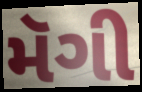
મૅગી